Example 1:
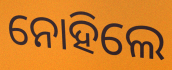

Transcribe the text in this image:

ନୋହିଲେ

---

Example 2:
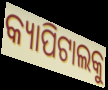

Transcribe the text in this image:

କ୍ୟାପିଟାଲକୁ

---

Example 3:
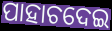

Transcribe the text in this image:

ପାହାଚଦେଇ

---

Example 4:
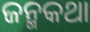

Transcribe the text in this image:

ଜନ୍ମକଥା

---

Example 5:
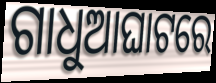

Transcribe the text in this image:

ଗାଧୁଆଘାଟରେ